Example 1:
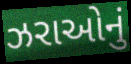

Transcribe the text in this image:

ઝરાઓનું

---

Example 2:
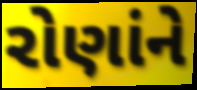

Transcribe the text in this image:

રોણાંને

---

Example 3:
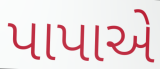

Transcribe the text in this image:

પાપાએ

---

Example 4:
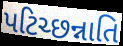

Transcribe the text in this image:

પટિચ્છન્નાતિ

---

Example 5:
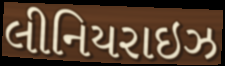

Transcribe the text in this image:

લીનિયરાઇઝ